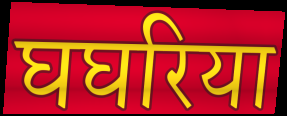
घघरिया